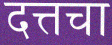
दत्तचा